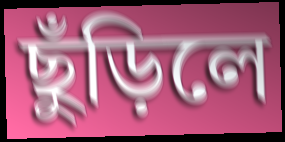
ছুঁড়িলে